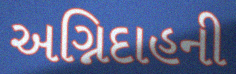
અગ્નિદાહની